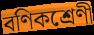
বণিকশ্রেণী